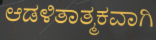
ಆಡಳಿತಾತ್ಮಕವಾಗಿ